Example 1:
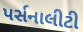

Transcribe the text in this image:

પર્સનાલીટી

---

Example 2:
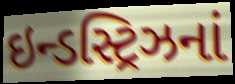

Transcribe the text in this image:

ઇન્ડસ્ટ્રિઝનાં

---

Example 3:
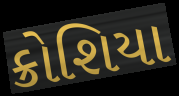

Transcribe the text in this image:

ક્રોશિયા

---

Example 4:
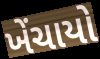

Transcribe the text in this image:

ખેંચાયો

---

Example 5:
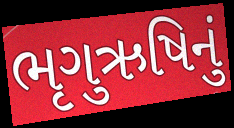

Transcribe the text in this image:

ભૃગુઋષિનું